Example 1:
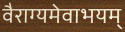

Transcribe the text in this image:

वैराग्यमेवाभयम्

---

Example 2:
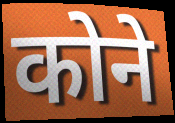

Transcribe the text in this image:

कोने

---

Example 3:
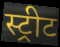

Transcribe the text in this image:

स्ट्रीट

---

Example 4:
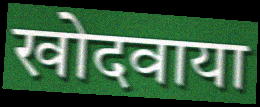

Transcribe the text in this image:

खोदवाया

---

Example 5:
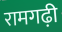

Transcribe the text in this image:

रामगढ़ी